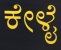
ಕೇಳೈ